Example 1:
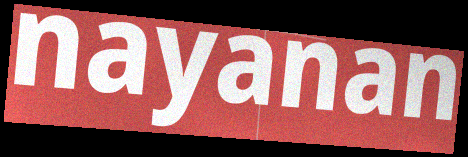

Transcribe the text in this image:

nayanan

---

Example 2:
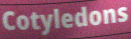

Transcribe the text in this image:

Cotyledons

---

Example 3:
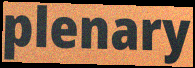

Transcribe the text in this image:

plenary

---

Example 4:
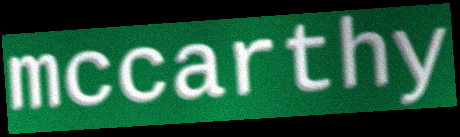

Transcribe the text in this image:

mccarthy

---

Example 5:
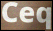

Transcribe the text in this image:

Ceq